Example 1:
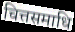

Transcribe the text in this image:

चित्तसमाधि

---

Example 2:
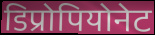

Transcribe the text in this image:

डिप्रोपियोनेट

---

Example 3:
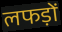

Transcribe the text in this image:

लफड़ों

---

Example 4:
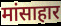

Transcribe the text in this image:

मांसाहार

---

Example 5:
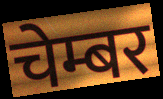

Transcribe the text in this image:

चेम्बर